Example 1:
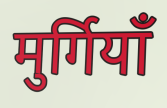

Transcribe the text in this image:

मुर्गियाँ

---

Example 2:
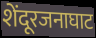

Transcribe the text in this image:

शेंदूरजनाघाट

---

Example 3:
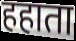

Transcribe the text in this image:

हहाता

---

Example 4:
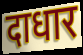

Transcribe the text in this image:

दाधार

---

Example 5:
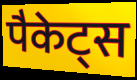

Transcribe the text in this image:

पैकेट्स